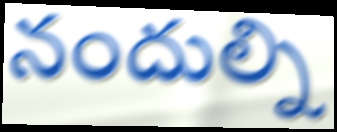
నందుల్ని